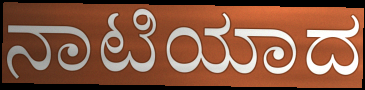
ನಾಟಿಯಾದ